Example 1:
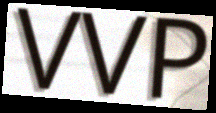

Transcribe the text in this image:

VVP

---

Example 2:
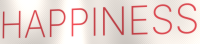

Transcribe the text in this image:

HAPPINESS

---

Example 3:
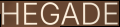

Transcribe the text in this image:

HEGADE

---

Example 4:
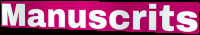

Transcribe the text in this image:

Manuscrits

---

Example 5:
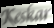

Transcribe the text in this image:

Keskar